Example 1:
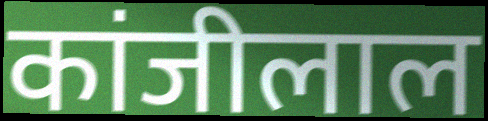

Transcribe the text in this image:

कांजीलाल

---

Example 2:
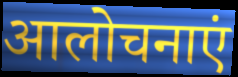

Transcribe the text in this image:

आलोचनाएं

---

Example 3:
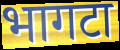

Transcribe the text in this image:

भागटा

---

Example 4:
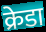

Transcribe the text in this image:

क्रेडा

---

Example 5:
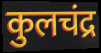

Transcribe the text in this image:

कुलचंद्र